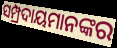
ସମ୍ପ୍ରଦାୟମାନଙ୍କର